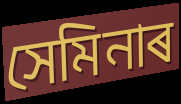
সেমিনাৰ